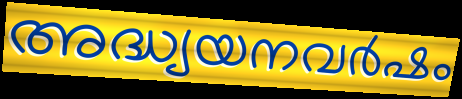
അദ്ധ്യയനവർഷം